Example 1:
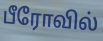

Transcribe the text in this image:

பீரோவில்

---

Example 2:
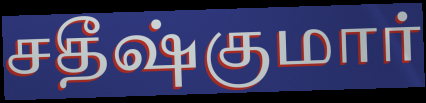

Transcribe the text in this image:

சதீஷ்குமார்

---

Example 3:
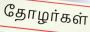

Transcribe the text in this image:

தோழர்கள்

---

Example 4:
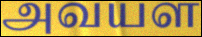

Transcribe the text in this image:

அவயள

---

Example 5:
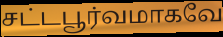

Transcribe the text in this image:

சட்டபூர்வமாகவே